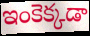
ఇంకెక్కడా